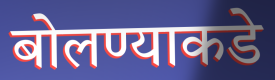
बोलण्याकडे